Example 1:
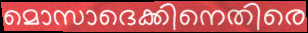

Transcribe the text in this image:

മൊസാദെക്കിനെതിരെ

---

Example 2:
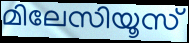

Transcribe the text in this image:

മിലേസിയൂസ്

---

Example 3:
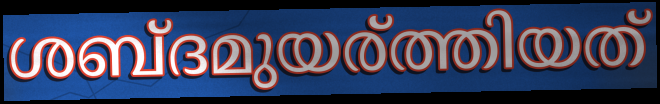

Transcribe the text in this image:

ശബ്ദമുയര്ത്തിയത്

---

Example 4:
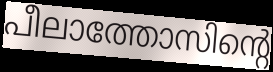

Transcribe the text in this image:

പീലാത്തോസിന്റെ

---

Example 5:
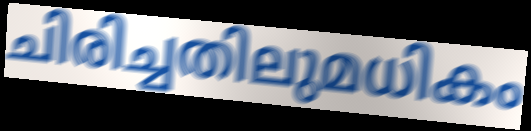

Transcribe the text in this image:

ചിരിച്ചതിലുമധികം